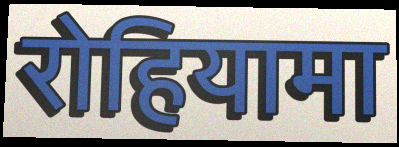
रोहियामा